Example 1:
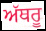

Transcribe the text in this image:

ਅੱਥਰੂ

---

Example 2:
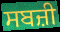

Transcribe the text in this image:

ਸਬਜ਼ੀ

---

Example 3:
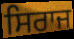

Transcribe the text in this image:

ਸਿਰਾਜ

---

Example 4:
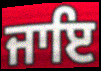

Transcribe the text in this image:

ਜਾਇ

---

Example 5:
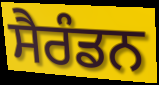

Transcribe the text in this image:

ਸੈਰੰਡਨ